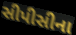
સીપીસીના